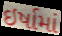
ઇર્ષામાં